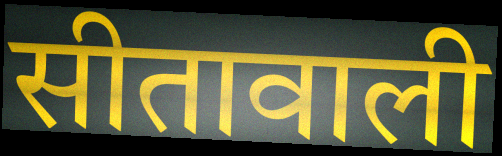
सीतावाली